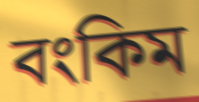
বংকিম